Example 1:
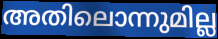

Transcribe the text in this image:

അതിലൊന്നുമില്ല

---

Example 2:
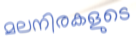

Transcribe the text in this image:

മലനിരകളുടെ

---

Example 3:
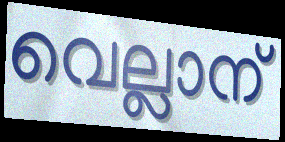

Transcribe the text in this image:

വെല്ലാന്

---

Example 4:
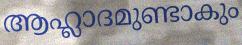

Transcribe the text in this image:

ആഹ്ലാദമുണ്ടാകും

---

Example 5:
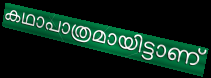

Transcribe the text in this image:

കഥാപാത്രമായിട്ടാണ്